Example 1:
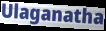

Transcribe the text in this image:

Ulaganatha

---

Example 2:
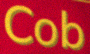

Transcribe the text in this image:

Cob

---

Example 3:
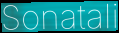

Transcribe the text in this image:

Sonatali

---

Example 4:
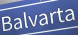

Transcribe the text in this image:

Balvarta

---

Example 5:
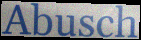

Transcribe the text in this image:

Abusch